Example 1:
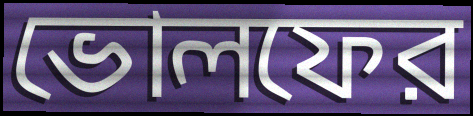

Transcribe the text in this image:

ভোলফের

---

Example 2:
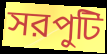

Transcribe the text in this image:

সরপুটি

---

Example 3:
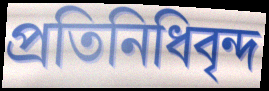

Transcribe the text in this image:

প্রতিনিধিবৃন্দ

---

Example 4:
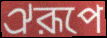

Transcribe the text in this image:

ঐরূপে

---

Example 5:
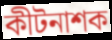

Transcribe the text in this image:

কীটনাশক